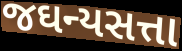
જઘન્યસત્તા